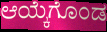
ಆಯ್ಕೆಗೊಂಡ